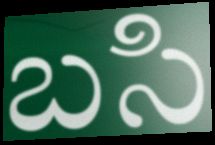
బసి